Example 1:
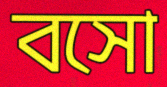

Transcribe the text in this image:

বসো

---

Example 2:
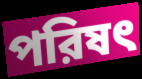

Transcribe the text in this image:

পরিষৎ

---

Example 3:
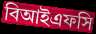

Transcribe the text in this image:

বিআইএফসি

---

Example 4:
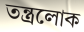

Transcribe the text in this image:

তন্ত্রলোক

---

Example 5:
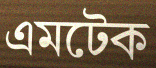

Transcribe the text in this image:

এমটেক